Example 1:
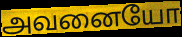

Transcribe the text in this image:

அவனையோ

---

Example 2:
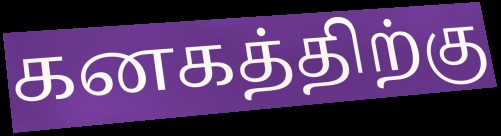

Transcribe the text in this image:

கனகத்திற்கு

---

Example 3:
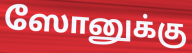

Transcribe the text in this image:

ஸோனுக்கு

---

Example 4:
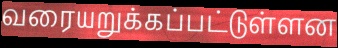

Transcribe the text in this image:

வரையறுக்கப்பட்டுள்ளன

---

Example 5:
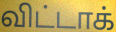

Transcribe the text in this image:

விட்டாக்